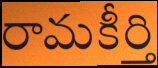
రామకీర్తి